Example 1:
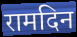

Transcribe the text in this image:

रामदिन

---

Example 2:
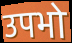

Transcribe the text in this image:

उपभो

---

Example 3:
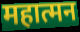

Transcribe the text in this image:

महात्मन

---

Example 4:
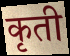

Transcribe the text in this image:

कृती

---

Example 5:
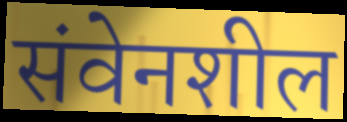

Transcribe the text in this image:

संवेनशील